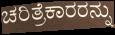
ಚರಿತ್ರೆಕಾರರನ್ನು